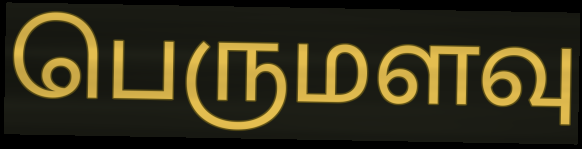
பெருமளவு